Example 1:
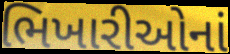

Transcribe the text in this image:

ભિખારીઓનાં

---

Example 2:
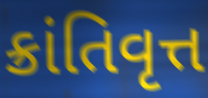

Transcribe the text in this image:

ક્રાંતિવૃત્ત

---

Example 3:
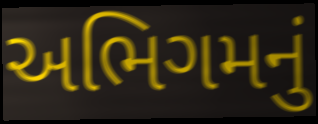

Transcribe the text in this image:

અભિગમનું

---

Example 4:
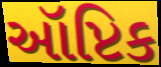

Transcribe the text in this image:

ઑપ્ટિક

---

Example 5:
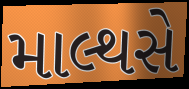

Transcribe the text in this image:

માલ્થસે